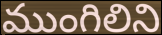
ముంగిలిని